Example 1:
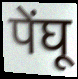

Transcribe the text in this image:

पेंघू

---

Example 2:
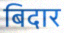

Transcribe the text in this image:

बिदार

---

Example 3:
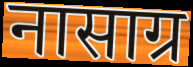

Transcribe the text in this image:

नासाग्र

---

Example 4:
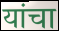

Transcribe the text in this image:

यांचा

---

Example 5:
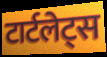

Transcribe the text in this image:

टार्टलेट्स